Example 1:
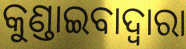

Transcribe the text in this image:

କୁଣ୍ଡାଇବାଦ୍ୱାରା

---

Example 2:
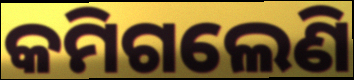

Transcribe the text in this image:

କମିଗଲେଣି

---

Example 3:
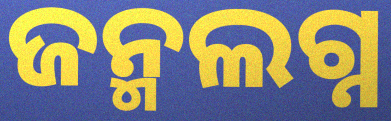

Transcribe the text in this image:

ଜନ୍ମଲଗ୍ନ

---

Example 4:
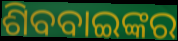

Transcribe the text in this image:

ଶିବବାଇଙ୍କର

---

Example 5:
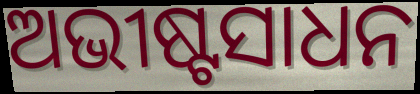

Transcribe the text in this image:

ଅଭୀଷ୍ଟସାଧନ